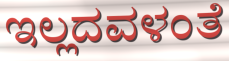
ಇಲ್ಲದವಳಂತೆ